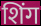
शिंग